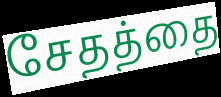
சேதத்தை